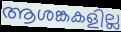
ആശങ്കകളില്ല